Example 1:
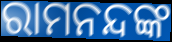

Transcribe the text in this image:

ରାମନନ୍ଦଙ୍କ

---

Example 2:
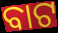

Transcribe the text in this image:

ବାଟ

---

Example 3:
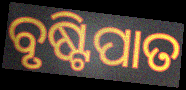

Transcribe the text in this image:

ବୃଷ୍ଟିପାତ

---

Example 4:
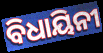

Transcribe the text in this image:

ବିଧାୟିନୀ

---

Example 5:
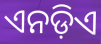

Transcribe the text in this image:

ଏନଡ଼ିଏ